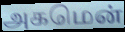
அகமென்